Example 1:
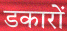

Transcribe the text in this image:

डकारों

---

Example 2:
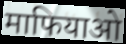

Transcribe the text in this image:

माफियाओ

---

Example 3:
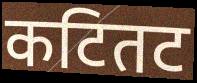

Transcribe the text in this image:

कटितट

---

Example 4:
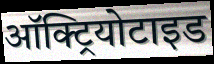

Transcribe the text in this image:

ऑक्ट्रियोटाइड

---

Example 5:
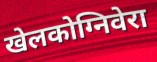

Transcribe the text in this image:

खेलकोग्निवेरा